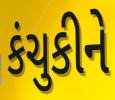
કંચુકીને